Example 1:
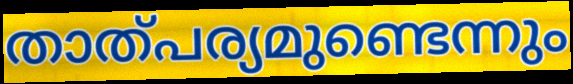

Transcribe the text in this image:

താത്പര്യമുണ്ടെന്നും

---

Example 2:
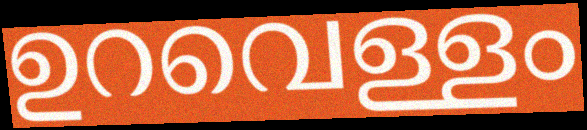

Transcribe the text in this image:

ഉറവെള്ളം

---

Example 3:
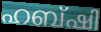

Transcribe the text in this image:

ഹബ്ഷി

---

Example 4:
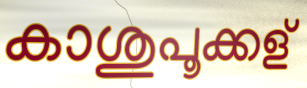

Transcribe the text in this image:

കാശുപൂക്കള്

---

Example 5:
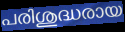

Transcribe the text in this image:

പരിശുദ്ധരായ